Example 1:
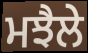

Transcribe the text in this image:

ਮਝੈਲੇ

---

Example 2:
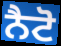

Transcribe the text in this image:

ਨੈਟੋ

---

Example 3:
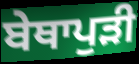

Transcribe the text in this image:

ਬੇਥਾਪੁੜੀ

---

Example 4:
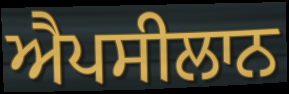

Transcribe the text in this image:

ਐਪਸੀਲਾਨ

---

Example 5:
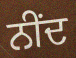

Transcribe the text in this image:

ਨੀਂਦ